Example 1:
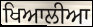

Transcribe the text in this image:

ਖਿਆਲੀਆ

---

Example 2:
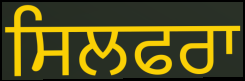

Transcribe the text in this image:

ਸਿਲਫਰਾ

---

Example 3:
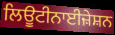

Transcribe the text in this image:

ਲਿਊਟੀਨਾਈਜ਼ੇਸ਼ਨ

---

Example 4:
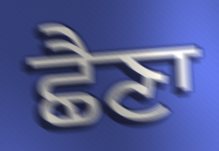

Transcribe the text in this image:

ਛੈਣਾ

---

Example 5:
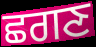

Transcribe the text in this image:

ਛਗਣ